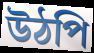
উঠপি